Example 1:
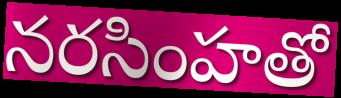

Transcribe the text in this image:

నరసింహతో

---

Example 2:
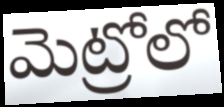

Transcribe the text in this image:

మెట్రోలో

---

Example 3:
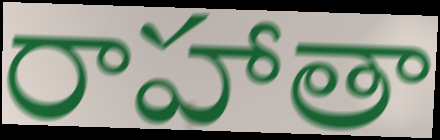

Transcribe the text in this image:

రాహాతా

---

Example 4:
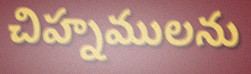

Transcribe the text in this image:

చిహ్నములను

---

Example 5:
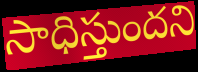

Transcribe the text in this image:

సాధిస్తుందని